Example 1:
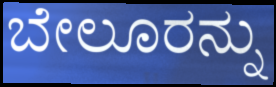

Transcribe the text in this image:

ಬೇಲೂರನ್ನು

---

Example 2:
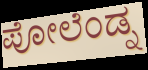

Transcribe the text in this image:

ಪೋಲೆಂಡ್ನ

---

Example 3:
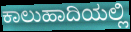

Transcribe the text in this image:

ಕಾಲುಹಾದಿಯಲ್ಲಿ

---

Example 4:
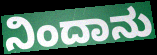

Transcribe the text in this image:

ನಿಂದಾನು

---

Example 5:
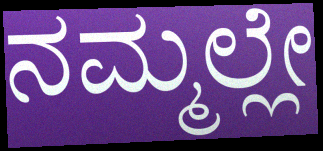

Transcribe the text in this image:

ನಮ್ಮಲ್ಲೇ